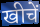
खीचें